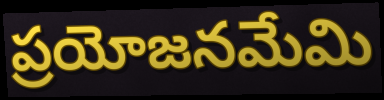
ప్రయోజనమేమి